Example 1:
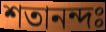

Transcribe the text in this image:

শতানন্দঃ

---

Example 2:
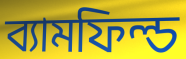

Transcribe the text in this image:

ব্যামফিল্ড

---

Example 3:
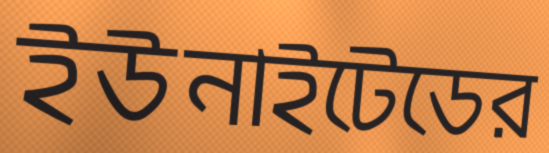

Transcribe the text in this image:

ইউনাইটেডের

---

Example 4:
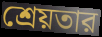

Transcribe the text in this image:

শ্রেয়তার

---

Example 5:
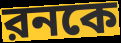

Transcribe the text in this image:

রনকে